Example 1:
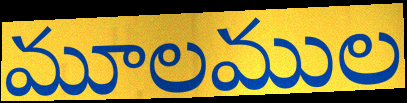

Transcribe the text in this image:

మూలముల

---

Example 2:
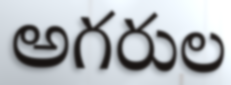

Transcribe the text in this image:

అగరుల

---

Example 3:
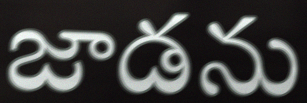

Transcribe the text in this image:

జాడను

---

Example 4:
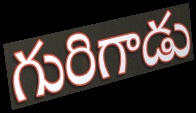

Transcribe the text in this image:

గురిగాడు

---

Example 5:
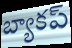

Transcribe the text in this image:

బ్యాకప్